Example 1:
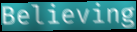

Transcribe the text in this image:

Believing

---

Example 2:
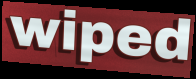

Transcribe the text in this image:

wiped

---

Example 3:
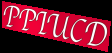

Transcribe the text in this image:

PPIUCD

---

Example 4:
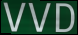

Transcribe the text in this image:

VVD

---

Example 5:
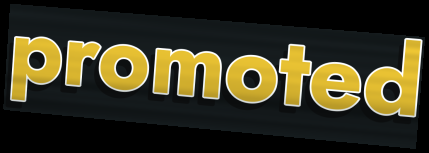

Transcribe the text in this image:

promoted